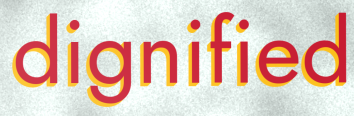
dignified